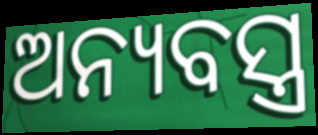
ଅନ୍ୟବସ୍ତ୍ର